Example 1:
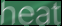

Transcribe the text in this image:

heat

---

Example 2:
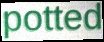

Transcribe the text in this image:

potted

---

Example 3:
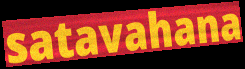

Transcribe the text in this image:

satavahana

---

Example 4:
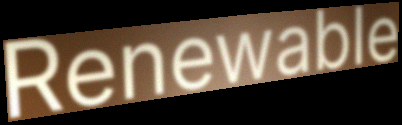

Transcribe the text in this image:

Renewable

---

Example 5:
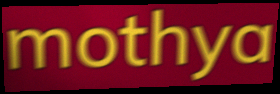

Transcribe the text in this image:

mothya